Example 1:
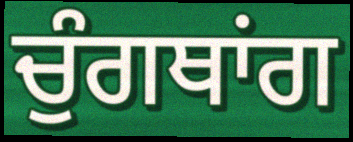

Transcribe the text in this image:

ਚੁੰਗਥਾਂਗ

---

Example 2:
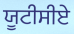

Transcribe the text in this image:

ਯੂਟੀਸੀਏ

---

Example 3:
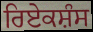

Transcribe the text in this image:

ਰਿਏਕਸ਼ੰਸ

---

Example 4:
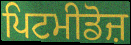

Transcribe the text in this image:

ਪਿਟਮੀਡੋਜ਼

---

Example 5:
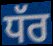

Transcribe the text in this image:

ਧੱਰ